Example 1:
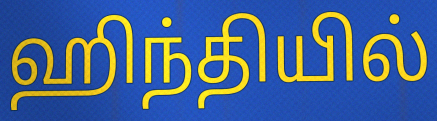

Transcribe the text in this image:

ஹிந்தியில்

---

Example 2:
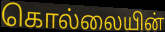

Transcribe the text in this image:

கொல்லையின்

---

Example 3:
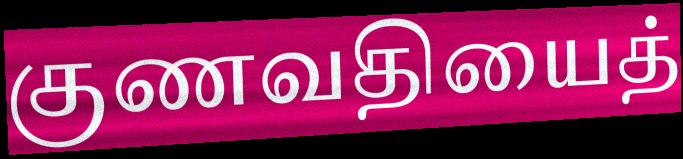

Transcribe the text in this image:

குணவதியைத்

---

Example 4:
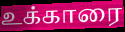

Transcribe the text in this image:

உக்காரை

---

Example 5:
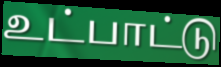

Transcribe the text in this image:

உட்பாட்டு